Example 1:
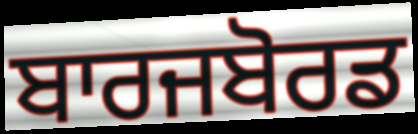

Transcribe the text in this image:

ਬਾਰਜਬੋਰਡ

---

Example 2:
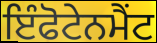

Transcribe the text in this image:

ਇੰਫੋਟੇਨਮੈਂਟ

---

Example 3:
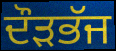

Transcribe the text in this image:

ਦੌੜਭੱਜ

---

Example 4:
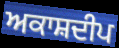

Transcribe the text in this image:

ਅਕਾਸ਼ਦੀਪ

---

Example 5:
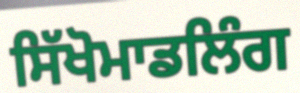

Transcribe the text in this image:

ਸਿੱਖੋਮਾਡਲਿੰਗ